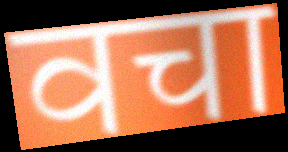
वचा